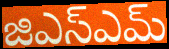
జిఎస్ఎమ్